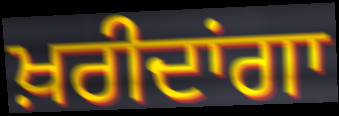
ਖ਼ਰੀਦਾਂਗਾ